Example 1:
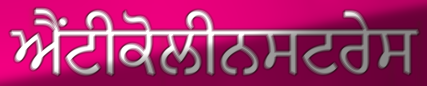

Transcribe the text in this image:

ਐਂਟੀਕੋਲੀਨਸਟਰੇਸ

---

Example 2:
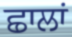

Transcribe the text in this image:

ਛਾਲਾਂ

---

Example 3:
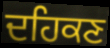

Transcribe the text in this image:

ਦਹਿਕਣ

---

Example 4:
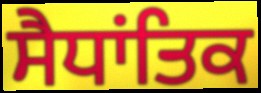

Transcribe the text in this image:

ਸੈਧਾਂਤਿਕ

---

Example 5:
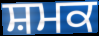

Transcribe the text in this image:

ਸ਼ਮਕ